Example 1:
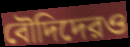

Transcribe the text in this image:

বৌদিদেরও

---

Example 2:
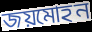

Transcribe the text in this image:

জয়মোহন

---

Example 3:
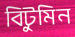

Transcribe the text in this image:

বিটুমিন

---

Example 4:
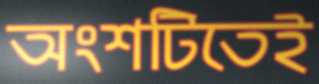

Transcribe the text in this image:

অংশটিতেই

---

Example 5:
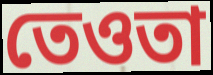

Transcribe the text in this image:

তেওতা